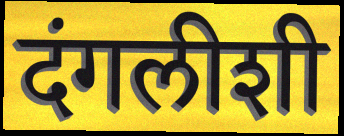
दंगलीशी